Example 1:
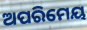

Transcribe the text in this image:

ଅପରିମେୟ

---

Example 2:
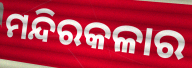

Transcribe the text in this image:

ମନ୍ଦିରକଳାର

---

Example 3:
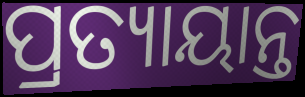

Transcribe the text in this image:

ପ୍ରତ୍ୟାୟାନ୍ତ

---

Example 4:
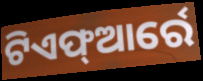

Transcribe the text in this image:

ଟିଏଫ୍ଆର୍ରେ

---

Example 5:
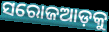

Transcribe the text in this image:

ସରୋଜଆଡ଼କୁ